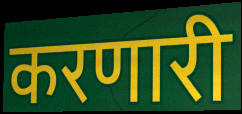
करणारी